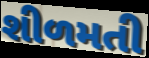
શીળમતી